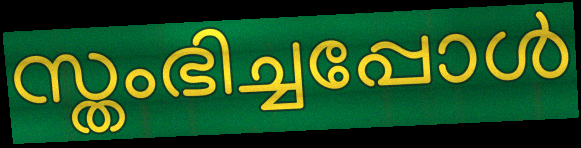
സ്തംഭിച്ചപ്പോൾ